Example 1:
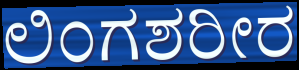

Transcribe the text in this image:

ಲಿಂಗಶರೀರ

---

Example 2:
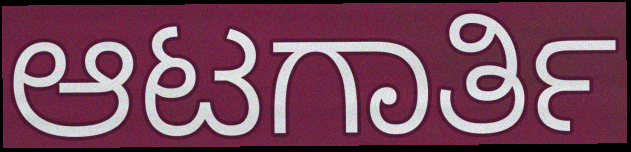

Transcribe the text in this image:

ಆಟಗಾರ್ತಿ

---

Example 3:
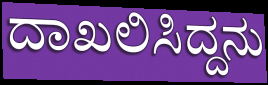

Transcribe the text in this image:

ದಾಖಲಿಸಿದ್ದನು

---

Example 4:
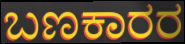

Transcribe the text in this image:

ಬಣಕಾರರ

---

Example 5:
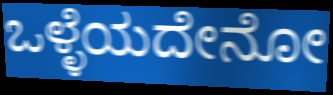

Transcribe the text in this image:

ಒಳ್ಳೆಯದೇನೋ